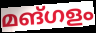
മങ്ഗളം